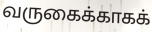
வருகைக்காகக்